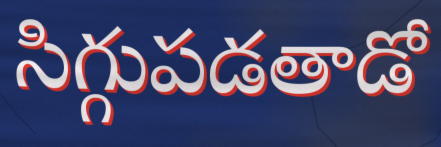
సిగ్గుపడతాడో